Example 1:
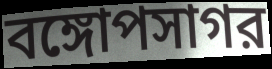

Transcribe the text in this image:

বঙ্গোপসাগর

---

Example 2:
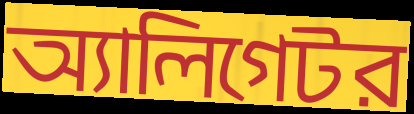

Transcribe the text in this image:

অ্যালিগেটর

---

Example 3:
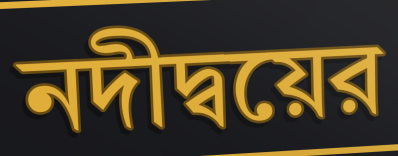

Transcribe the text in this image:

নদীদ্বয়ের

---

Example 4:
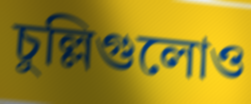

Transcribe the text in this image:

চুল্লিগুলোও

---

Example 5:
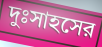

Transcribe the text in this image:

দুঃসাহসের